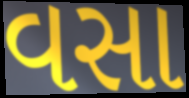
વસા